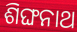
ଶିଙ୍ଘନାଥ